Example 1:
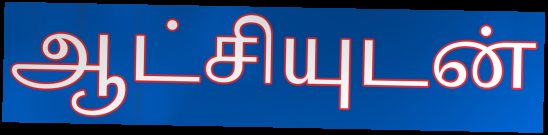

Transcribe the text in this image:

ஆட்சியுடன்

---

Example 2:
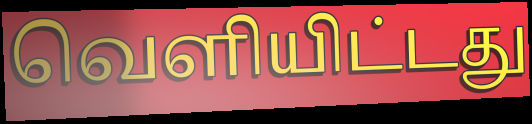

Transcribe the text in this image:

வெளியிட்டது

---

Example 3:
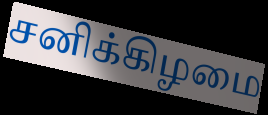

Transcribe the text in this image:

சனிக்கிழமை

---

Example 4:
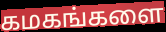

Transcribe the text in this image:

கமகங்களை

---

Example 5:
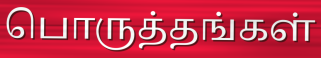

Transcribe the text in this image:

பொருத்தங்கள்